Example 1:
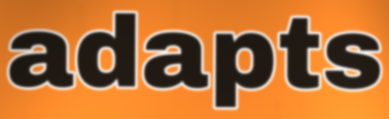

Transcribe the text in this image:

adapts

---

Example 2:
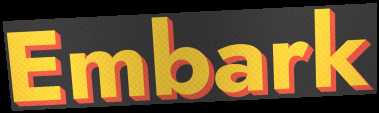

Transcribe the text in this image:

Embark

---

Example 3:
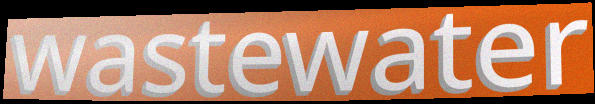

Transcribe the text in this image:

wastewater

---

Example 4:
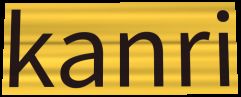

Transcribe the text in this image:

kanri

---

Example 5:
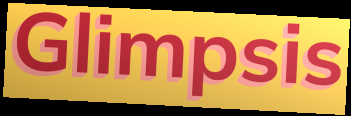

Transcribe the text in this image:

Glimpsis